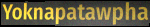
Yoknapatawpha